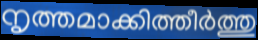
നൃത്തമാക്കിത്തീർത്തു